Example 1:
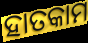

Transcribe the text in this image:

ହାତକାମ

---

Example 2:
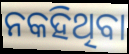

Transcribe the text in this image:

ନକହିଥିବା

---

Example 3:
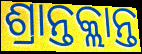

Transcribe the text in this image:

ଶ୍ରାନ୍ତକ୍ଲାନ୍ତ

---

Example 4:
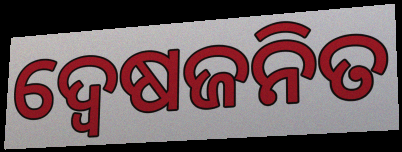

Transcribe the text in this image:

ଦ୍ଵେଷଜନିତ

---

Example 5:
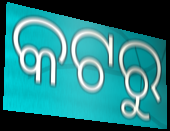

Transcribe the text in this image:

କଟରୁ